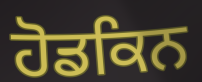
ਹੋਡਕਿਨ